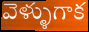
వెళ్ళుగాక